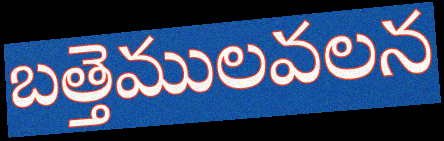
బత్తెములవలన